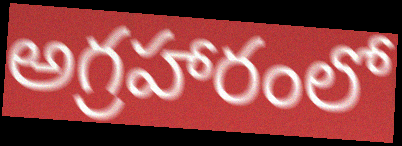
అగ్రహారంలో